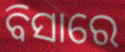
ବିସାରେ